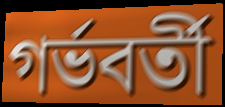
গর্ভবর্তী